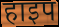
हाइप